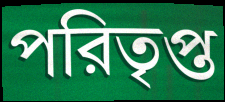
পরিতৃপ্ত